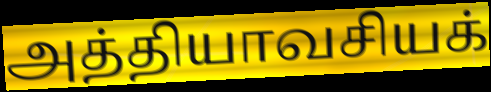
அத்தியாவசியக்